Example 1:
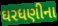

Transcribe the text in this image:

ઘરધણીના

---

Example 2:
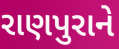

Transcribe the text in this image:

રાણપુરાને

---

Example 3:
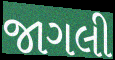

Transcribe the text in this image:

જાગલી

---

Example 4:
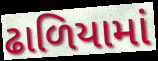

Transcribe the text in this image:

ઢાળિયામાં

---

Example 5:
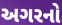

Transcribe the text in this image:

અગરનો